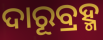
ଦାରୂବ୍ରହ୍ମ